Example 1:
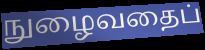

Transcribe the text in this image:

நுழைவதைப்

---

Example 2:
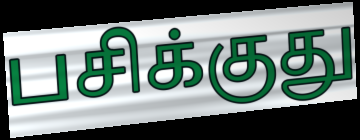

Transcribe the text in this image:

பசிக்குது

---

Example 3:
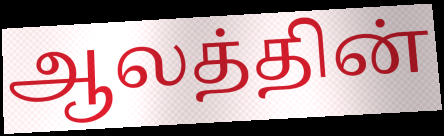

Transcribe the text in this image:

ஆலத்தின்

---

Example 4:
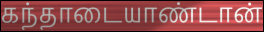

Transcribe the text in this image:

கந்தாடையாண்டான்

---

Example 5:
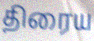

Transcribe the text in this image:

திரைய